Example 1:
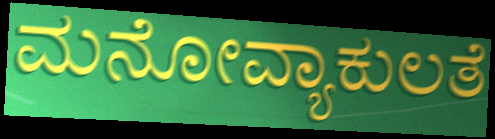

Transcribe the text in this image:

ಮನೋವ್ಯಾಕುಲತೆ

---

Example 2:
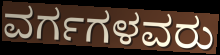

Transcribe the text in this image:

ವರ್ಗಗಳವರು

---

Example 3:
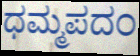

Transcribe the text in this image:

ಧಮ್ಮಪದಂ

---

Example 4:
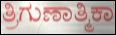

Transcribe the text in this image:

ತ್ರಿಗುಣಾತ್ಮಿಕಾ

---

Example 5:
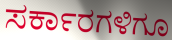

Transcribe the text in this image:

ಸರ್ಕಾರಗಳಿಗೂ